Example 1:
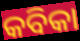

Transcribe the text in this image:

କବିକା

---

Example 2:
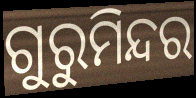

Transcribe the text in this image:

ଗୁରୁମିନ୍ଦର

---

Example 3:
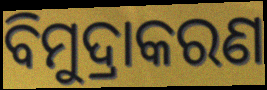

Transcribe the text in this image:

ବିମୁଦ୍ରାକରଣ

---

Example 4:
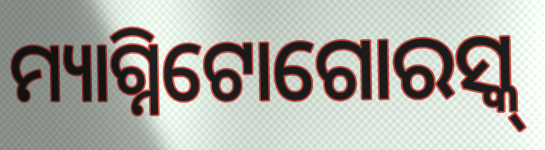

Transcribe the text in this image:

ମ୍ୟାଗ୍ନିଟୋଗୋରସ୍କ୍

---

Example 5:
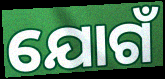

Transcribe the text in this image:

ଯୋଗଁ